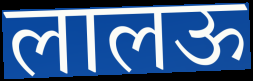
लालऊ